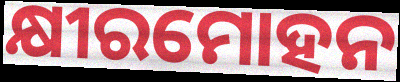
କ୍ଷୀରମୋହନ